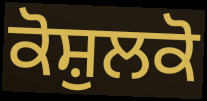
ਕੋਸ਼ੁਲਕੋ